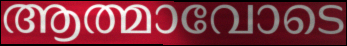
ആത്മാവോടെ